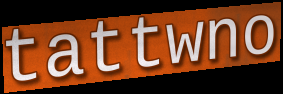
tattwno